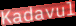
Kadavul